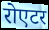
रोएटर